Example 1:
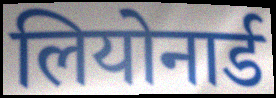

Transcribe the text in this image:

लियोनार्ड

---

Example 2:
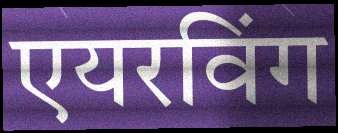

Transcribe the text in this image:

एयरविंग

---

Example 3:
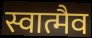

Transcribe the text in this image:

स्वात्मैव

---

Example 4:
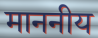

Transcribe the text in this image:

माननीय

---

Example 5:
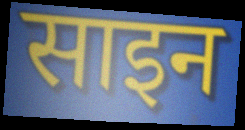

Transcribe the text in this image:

साइन